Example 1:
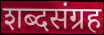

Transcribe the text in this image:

शब्दसंग्रह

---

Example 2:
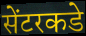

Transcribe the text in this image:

सेंटरकडे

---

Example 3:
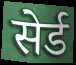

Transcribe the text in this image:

सेर्ड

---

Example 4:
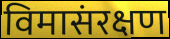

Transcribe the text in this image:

विमासंरक्षण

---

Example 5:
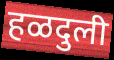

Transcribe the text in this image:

हळदुली